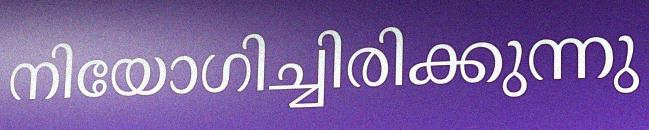
നിയോഗിച്ചിരിക്കുന്നു